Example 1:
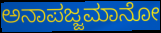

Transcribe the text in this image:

ಅನಾಪಜ್ಜಮಾನೋ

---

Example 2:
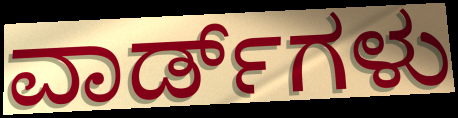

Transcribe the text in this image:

ವಾರ್ಡ್‌ಗಳು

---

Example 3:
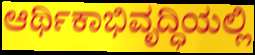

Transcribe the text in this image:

ಆರ್ಥಿಕಾಭಿವೃದ್ಧಿಯಲ್ಲಿ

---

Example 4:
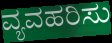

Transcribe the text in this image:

ವ್ಯವಹರಿಸು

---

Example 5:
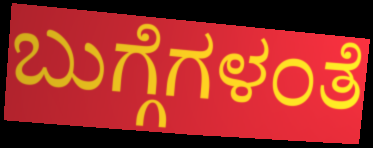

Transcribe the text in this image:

ಬುಗ್ಗೆಗಳಂತೆ